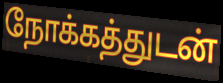
நோக்கத்துடன்